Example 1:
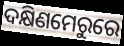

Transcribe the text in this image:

ଦକ୍ଷିଣମେରୁରେ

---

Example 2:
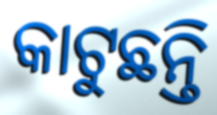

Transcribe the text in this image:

କାଟୁଛନ୍ତି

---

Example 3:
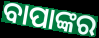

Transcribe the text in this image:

ବାପାଙ୍କର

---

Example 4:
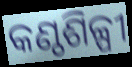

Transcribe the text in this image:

କଣ୍ଠଶିଳ୍ପୀ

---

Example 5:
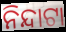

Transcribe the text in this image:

ନିନ୍ଦାଟା